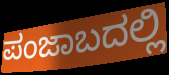
ಪಂಜಾಬದಲ್ಲಿ